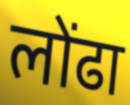
लोंढा